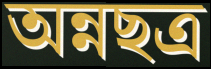
অন্নছত্র